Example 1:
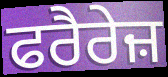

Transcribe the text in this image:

ਫਰੈਰੇਜ਼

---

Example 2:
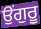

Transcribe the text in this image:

ਉਂਗੁਰੂ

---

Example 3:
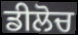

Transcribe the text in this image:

ਡੀਲੋਚ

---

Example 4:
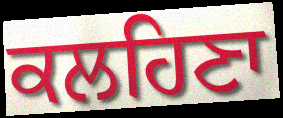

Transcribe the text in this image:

ਕਲਹਿਣਾ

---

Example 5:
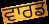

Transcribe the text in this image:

ਵਾਰਡ